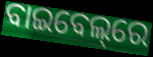
ବାଇବେଲ୍‌ରେ